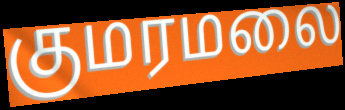
குமரமலை